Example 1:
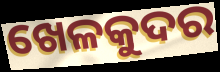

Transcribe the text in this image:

ଖେଳକୁଦର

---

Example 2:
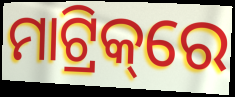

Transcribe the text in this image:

ମାଟ୍ରିକ୍‌ରେ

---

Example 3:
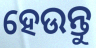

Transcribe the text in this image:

ହେଉନ୍ତୁ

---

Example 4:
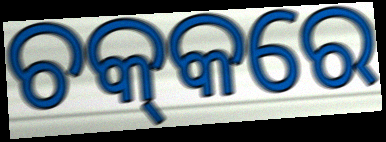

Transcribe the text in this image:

ଚକ୍‌କରେ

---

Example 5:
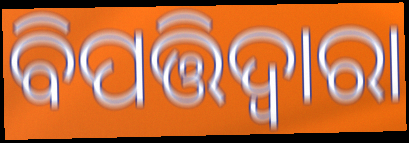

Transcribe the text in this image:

ବିପତ୍ତିଦ୍ୱାରା